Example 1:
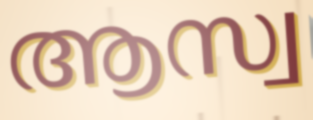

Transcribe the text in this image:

ആസ്വ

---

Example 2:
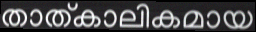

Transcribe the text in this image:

താത്കാലികമായ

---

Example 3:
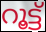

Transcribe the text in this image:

റൂട്ട്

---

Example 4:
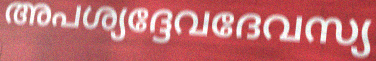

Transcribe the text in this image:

അപശ്യദ്ദേവദേവസ്യ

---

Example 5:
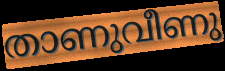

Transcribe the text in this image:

താണുവീണു